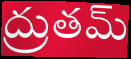
ద్రుతమ్